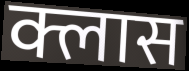
क्लास